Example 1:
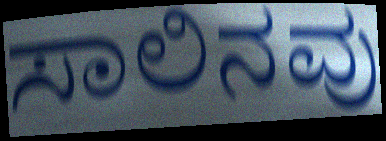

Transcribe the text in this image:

ಸಾಲಿನವು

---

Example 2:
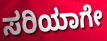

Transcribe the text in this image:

ಸರಿಯಾಗೇ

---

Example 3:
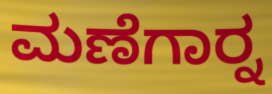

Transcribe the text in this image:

ಮಣೆಗಾರ್‍ನ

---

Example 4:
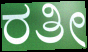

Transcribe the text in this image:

ರತೀ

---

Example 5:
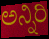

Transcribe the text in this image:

ಅನ್ನಿರಿ